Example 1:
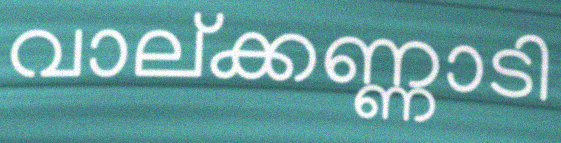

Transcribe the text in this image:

വാല്ക്കണ്ണാടി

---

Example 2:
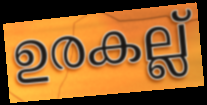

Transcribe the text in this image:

ഉരകല്ല്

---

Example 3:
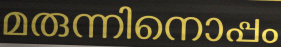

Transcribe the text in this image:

മരുന്നിനൊപ്പം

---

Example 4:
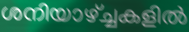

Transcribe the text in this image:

ശനിയാഴ്ച്ചകളിൽ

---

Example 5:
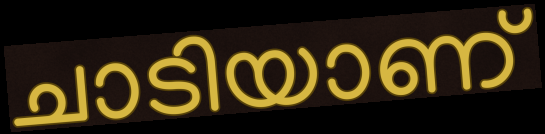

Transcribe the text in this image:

ചാടിയാണ്